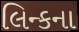
લિન્કના